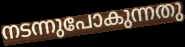
നടന്നുപോകുന്നതു